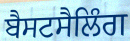
ਬੈਸਟਸੈਲਿੰਗ